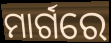
ମାର୍ଗରେ